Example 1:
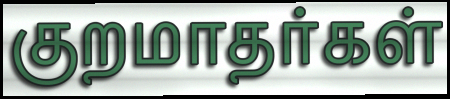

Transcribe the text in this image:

குறமாதர்கள்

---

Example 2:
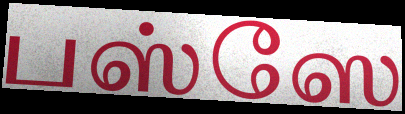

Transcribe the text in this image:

பஸ்ஸே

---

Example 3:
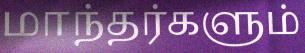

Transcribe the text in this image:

மாந்தர்களும்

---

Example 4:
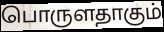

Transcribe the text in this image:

பொருளதாகும்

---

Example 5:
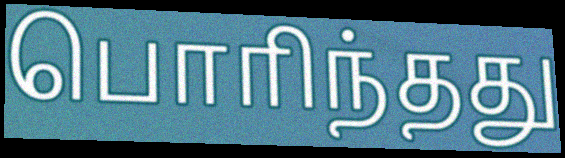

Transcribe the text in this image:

பொரிந்தது